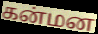
கன்மன